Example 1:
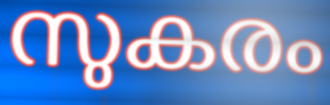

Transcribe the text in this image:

സുകരം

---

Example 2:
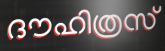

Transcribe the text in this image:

ദൗഹിത്രസ്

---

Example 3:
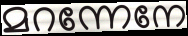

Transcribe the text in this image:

മറന്നേനേ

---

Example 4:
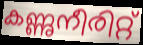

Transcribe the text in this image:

കണ്ണുനീരിറ്റ്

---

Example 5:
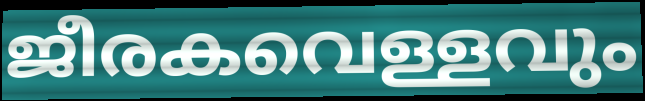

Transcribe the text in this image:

ജീരകവെള്ളവും